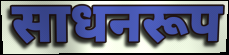
साधनरूप